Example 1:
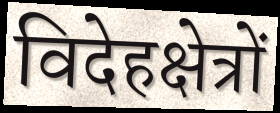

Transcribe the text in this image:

विदेहक्षेत्रों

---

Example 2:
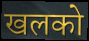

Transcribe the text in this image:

खलको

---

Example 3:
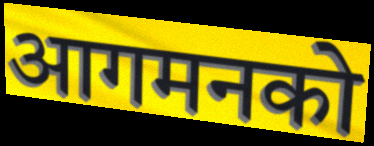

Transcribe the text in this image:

आगमनको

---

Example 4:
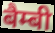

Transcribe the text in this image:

बैम्बी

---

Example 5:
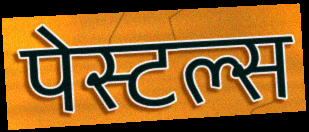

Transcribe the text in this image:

पेस्टल्स